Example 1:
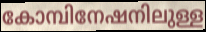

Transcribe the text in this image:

കോമ്പിനേഷനിലുള്ള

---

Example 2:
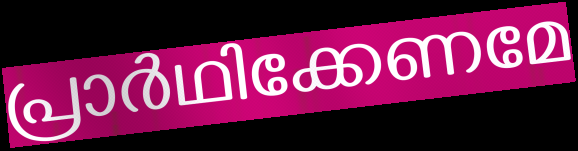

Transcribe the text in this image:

പ്രാർഥിക്കേണമേ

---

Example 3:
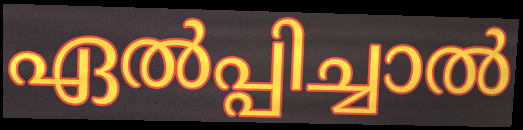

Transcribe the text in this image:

ഏൽപ്പിച്ചാൽ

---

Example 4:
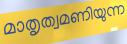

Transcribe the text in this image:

മാതൃത്വമണിയുന്ന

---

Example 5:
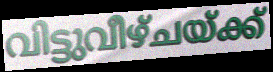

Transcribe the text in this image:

വിട്ടുവീഴ്ചയ്ക്ക്